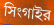
সিংগাইর